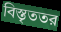
বিস্তৃততর